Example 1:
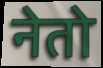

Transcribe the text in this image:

नेतो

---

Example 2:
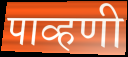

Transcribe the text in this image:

पाव्हणी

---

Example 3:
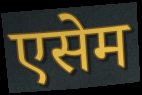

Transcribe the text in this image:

एसेम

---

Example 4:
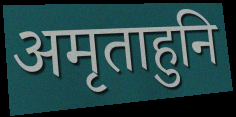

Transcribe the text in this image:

अमृताहुनि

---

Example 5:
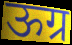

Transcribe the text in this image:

ऊग्र